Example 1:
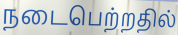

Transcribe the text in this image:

நடைபெற்றதில்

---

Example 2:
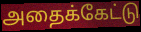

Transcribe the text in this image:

அதைக்கேட்டு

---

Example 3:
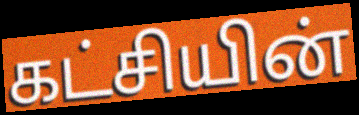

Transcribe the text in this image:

கட்சியின்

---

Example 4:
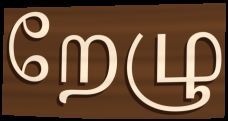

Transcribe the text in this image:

றேழு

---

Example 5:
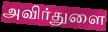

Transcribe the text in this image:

அவிர்துளை